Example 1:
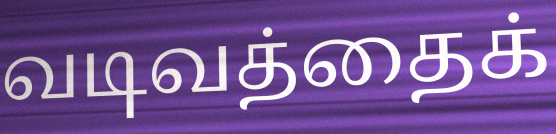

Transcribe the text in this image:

வடிவத்தைக்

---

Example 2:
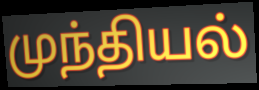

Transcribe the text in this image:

முந்தியல்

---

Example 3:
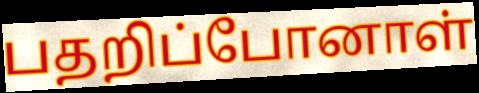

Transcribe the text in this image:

பதறிப்போனாள்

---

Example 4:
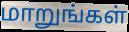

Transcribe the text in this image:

மாறுங்கள்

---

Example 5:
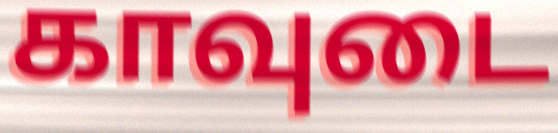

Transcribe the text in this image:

காவுடை